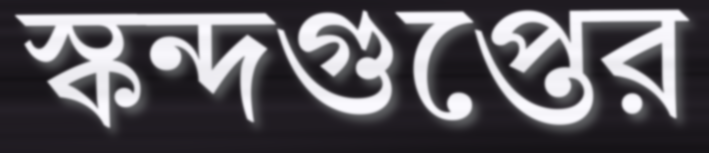
স্কন্দগুপ্তের